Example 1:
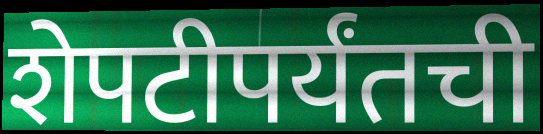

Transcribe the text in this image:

शेपटीपर्यंतची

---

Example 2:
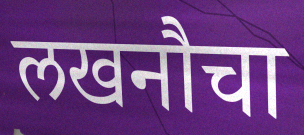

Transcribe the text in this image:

लखनौचा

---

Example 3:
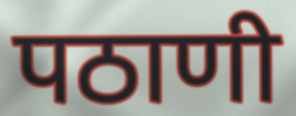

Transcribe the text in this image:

पठाणी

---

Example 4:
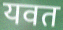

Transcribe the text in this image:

यवत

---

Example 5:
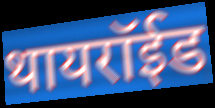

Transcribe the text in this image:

थायरॉईड